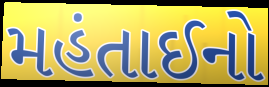
મહંતાઈનો